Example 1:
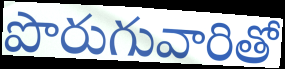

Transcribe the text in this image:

పొరుగువారితో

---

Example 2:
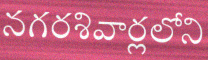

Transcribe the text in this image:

నగరశివార్లలోని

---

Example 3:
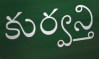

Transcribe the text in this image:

కుర్వన్తి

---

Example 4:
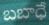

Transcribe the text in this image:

బబాధే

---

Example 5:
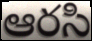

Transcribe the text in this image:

ఆరసి